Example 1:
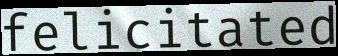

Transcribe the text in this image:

felicitated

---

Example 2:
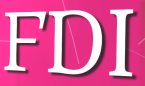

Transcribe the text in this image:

FDI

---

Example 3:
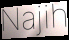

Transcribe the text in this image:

Najih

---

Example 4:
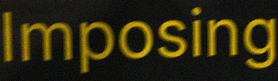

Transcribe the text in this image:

Imposing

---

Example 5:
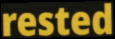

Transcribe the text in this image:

rested